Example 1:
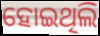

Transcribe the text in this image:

ହୋଇଥିଲି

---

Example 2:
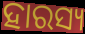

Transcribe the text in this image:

ହାରସ୍ୟ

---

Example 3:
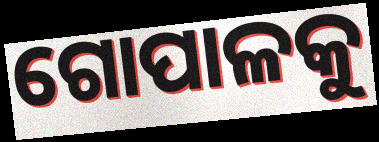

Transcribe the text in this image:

ଗୋପାଳକୁ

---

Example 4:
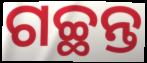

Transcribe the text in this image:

ଗଚ୍ଛନ୍ତ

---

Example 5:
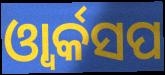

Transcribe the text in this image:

ଓ୍ୱାର୍କସପ